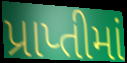
પ્રાપ્તીમાં